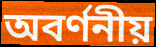
অবর্ণনীয়